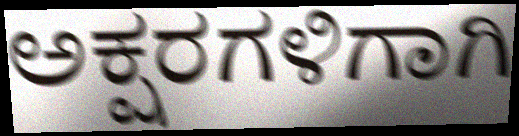
ಅಕ್ಷರಗಳಿಗಾಗಿ